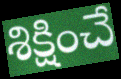
శిక్షించే